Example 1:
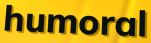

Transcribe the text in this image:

humoral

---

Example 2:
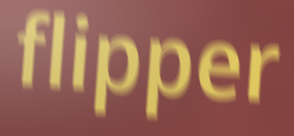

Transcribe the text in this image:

flipper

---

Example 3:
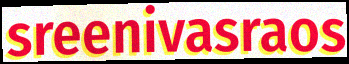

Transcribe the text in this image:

sreenivasraos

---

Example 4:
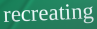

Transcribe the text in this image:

recreating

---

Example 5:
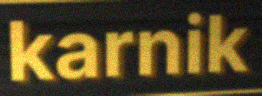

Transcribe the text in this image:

karnik